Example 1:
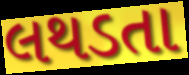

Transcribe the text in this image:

લથડતા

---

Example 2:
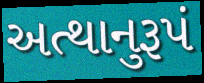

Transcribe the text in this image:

અત્થાનુરૂપં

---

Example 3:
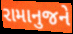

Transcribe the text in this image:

રામાનુજને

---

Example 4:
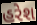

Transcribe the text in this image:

હરેશ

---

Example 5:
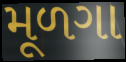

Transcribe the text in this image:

મૂળગા